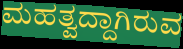
ಮಹತ್ವದ್ದಾಗಿರುವ